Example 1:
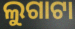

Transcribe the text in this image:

ଲୁଗାଟା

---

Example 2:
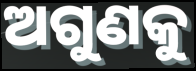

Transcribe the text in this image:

ଅଗୁଣକୁ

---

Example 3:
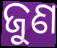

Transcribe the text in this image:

ଜୁଣ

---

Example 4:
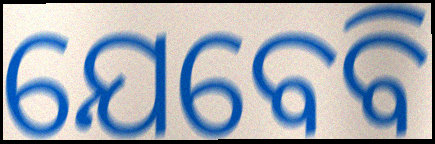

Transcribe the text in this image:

ଯେବେବି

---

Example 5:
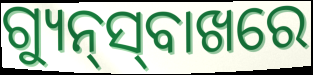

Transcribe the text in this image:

ଗ୍ୟୁନ୍‍ସ୍‍ବାଖରେ